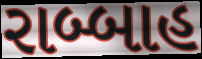
રાબ્બાહ